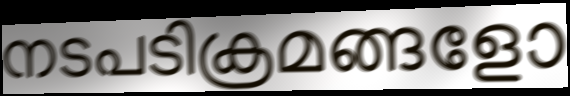
നടപടിക്രമങ്ങളോ